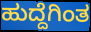
ಹುದ್ದೆಗಿಂತ